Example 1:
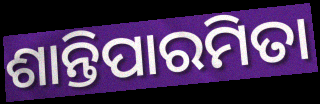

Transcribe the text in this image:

ଶାନ୍ତିପାରମିତା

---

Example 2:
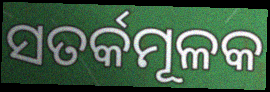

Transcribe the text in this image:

ସତର୍କମୂଳକ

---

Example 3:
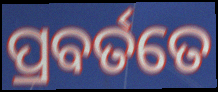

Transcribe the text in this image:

ପ୍ରବର୍ତତେ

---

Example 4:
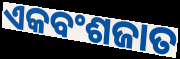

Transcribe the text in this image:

ଏକବଂଶଜାତ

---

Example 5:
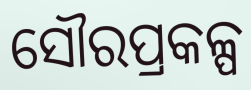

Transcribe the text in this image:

ସୌରପ୍ରକଳ୍ପ